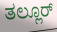
ತಲ್ಲೂರ್